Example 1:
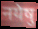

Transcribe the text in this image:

नयेषु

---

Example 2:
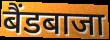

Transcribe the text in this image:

बैंडबाजा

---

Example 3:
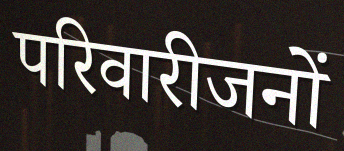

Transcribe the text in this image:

परिवारीजनों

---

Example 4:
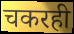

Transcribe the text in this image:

चकरही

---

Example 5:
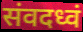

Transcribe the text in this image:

संवदध्वं